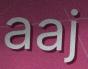
aaj